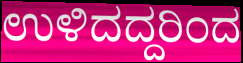
ಉಳಿದದ್ದರಿಂದ